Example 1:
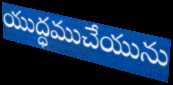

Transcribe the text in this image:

యుద్ధముచేయును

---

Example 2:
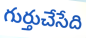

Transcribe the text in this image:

గుర్తుచేసేది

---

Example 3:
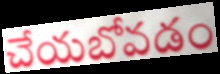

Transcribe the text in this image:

చేయబోవడం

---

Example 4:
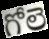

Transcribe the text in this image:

గోలె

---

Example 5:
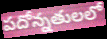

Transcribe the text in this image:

పదోన్నతులలో